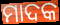
ମାଦକ